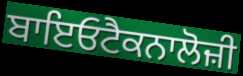
ਬਾਇਓਟੈਕਨਾਲੋਜ਼ੀ